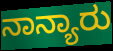
ನಾನ್ಯಾರು